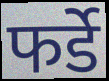
फर्डे